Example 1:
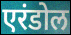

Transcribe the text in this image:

एरंडोल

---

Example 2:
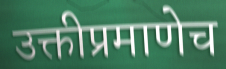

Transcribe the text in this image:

उक्तीप्रमाणेच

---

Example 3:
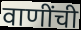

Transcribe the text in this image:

वाणींची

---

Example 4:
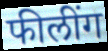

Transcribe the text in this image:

फीलींग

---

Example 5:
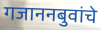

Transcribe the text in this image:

गजाननबुवांचे